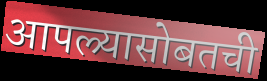
आपल्यासोबतची